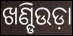
ଖଣ୍ଡିଉଡ଼ା